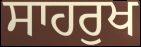
ਸਾਹਰੁਖ